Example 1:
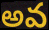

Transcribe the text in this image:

అవ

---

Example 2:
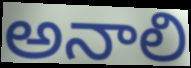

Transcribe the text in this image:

అనాలి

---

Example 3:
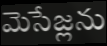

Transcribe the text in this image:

మెసేజ్లను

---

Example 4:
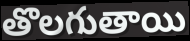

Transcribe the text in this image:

తొలగుతాయి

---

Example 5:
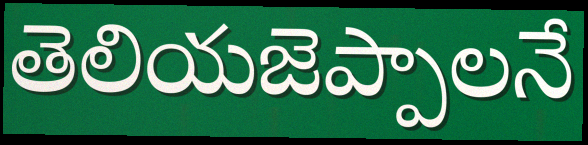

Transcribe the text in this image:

తెలియజెప్పాలనే